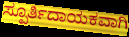
ಸ್ಪೂರ್ತಿದಾಯಕವಾಗಿ